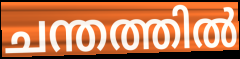
ചന്തത്തിൽ